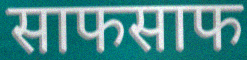
साफसाफ